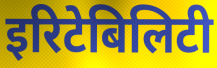
इरिटेबिलिटी